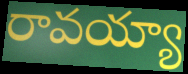
రావయ్యా